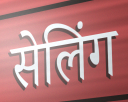
सेलिंग